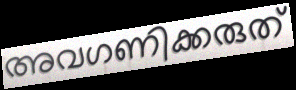
അവഗണിക്കരുത്